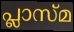
പ്ലാസ്മ